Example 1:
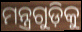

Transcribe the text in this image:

ମନ୍ତ୍ରଗୁଡ଼ିକୁ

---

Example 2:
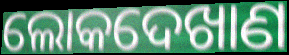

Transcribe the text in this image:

ଲୋକଦେଖାଣ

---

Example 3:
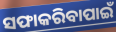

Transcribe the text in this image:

ସଫାକରିବାପାଇଁ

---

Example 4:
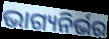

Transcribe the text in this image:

ଭାଗ୍ୟନିର୍ଭର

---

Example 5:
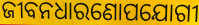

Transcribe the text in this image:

ଜୀବନଧାରଣୋପଯୋଗୀ